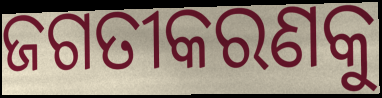
ଜଗତୀକରଣକୁ